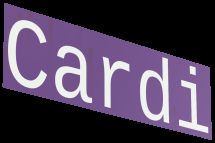
Cardi